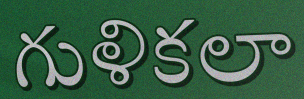
గుళికలా